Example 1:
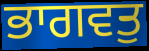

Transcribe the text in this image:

ਭਾਗਵਤੁ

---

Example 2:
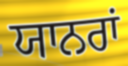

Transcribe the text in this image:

ਯਾਨਰਾਂ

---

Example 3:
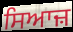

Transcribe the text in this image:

ਸਿਆਜ਼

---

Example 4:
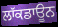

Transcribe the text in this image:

ਲਾੱਕਡਾਊਨ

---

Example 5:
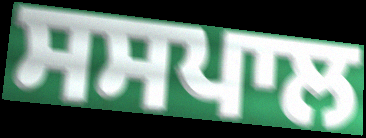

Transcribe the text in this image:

ਸਸਪਾਲ